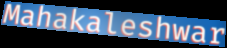
Mahakaleshwar